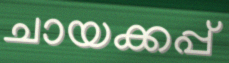
ചായക്കപ്പ്